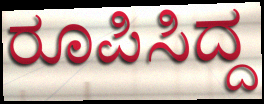
ರೂಪಿಸಿದ್ದ